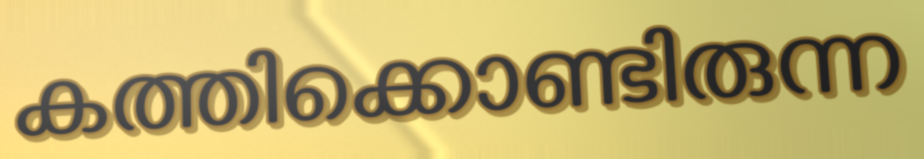
കത്തിക്കൊണ്ടിരുന്ന